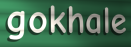
gokhale